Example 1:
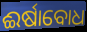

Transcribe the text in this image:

ଈର୍ଷାବୋଧ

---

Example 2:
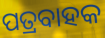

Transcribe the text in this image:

ପତ୍ରବାହକ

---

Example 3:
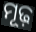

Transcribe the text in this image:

ମୂଢ଼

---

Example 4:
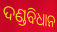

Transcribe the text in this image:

ଦଣ୍ଡବିଧାନ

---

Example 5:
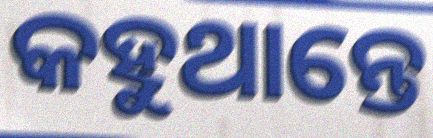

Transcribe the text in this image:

କହୁଥାନ୍ତେ